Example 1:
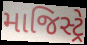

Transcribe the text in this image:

માજિસ્ટ્રે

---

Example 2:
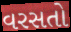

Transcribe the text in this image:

વરસતો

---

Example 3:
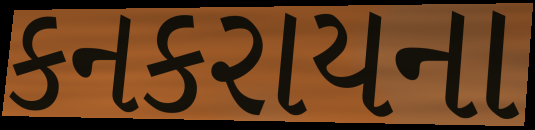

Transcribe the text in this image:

કનકરાયના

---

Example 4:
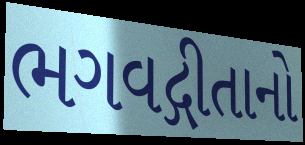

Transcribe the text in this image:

ભગવદ્ગીતાનો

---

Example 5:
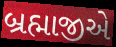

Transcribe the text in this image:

બ્રહ્માજીએ